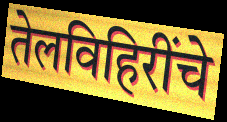
तेलविहिरींचे